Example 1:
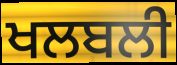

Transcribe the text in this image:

ਖਲਬਲੀ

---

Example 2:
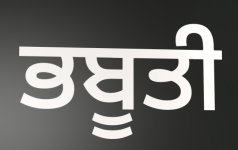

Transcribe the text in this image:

ਭਬੂਤੀ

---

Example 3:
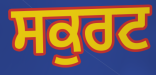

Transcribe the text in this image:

ਸਕੁਰਟ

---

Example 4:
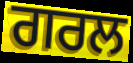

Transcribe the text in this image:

ਗਰਲ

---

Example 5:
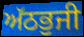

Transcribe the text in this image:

ਅੱਠਭੁਜੀ